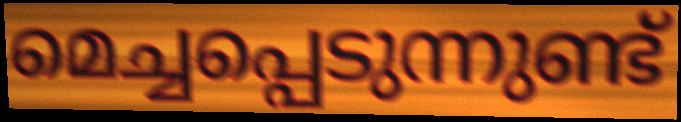
മെച്ചപ്പെടുന്നുണ്ട്